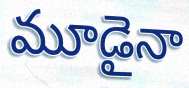
మూడైనా